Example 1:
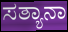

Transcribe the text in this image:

ಸತ್ಯಾನಾ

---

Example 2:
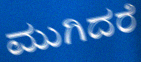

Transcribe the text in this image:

ಮುಗಿದರೆ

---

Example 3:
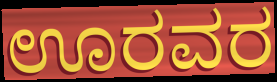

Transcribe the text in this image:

ಊರವರ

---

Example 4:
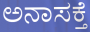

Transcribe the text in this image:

ಅನಾಸಕ್ತೆ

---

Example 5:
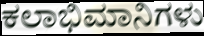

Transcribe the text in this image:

ಕಲಾಭಿಮಾನಿಗಳು